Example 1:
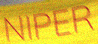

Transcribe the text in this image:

NIPER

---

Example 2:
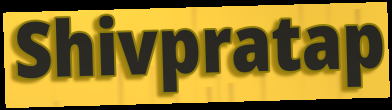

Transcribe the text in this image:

Shivpratap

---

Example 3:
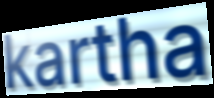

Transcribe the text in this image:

kartha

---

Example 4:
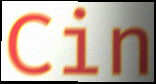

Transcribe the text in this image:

Cin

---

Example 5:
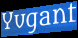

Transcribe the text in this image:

Yugant